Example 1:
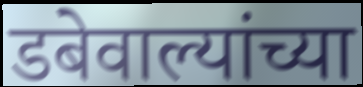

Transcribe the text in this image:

डबेवाल्यांच्या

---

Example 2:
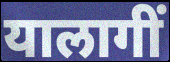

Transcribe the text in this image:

यालागीं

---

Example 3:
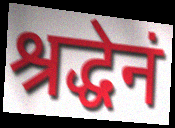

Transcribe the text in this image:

श्रद्धेनं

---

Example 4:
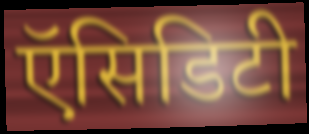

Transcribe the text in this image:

ऍसिडिटी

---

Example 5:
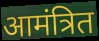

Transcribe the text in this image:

आमंत्रित